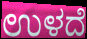
ಉಳದೆ